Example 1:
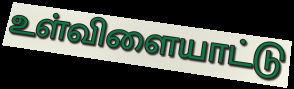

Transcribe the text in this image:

உள்விளையாட்டு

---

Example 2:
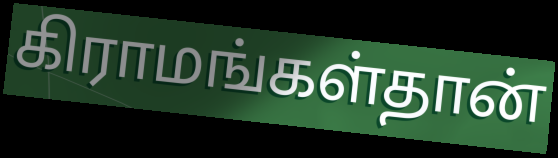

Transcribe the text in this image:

கிராமங்கள்தான்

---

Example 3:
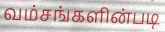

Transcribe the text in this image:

வம்சங்களின்படி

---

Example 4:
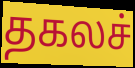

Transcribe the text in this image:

தகலச்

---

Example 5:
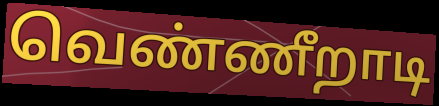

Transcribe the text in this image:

வெண்ணீறாடி